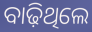
ବାଢ଼ିଥିଲେ